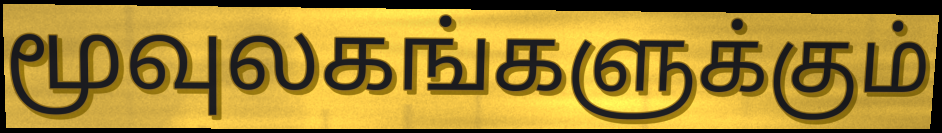
மூவுலகங்களுக்கும்